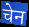
चेन